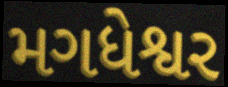
મગધેશ્વર